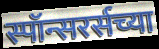
स्पॉन्सरर्सच्या